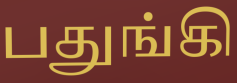
பதுங்கி